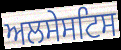
ਅਲਸੇਸਟਿਸ